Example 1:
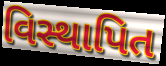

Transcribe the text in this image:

વિસ્થાપિત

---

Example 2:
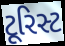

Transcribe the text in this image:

ટૂરિસ્ટ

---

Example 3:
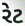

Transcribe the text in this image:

રેટ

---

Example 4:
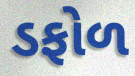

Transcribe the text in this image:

ડફોળ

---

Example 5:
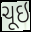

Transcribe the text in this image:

ચૂઇ